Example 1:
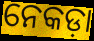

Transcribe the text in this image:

ନେକଡ଼ା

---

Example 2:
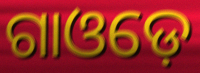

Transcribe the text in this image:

ଗାଓଡ଼େ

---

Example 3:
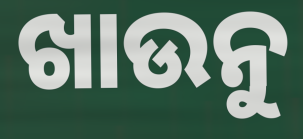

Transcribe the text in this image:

ଖାଉନୁ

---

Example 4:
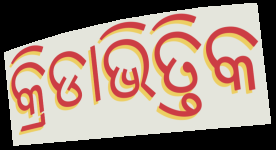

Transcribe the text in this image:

କ୍ରିଡାଭିତ୍ତିକ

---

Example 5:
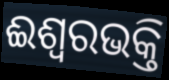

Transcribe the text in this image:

ଈଶ୍ୱରଭକ୍ତି